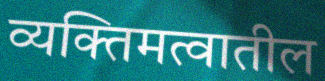
व्यक्तिमत्वातील